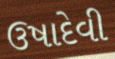
ઉષાદેવી